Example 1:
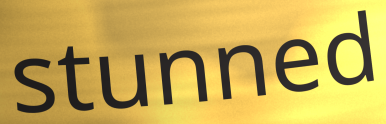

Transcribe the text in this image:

stunned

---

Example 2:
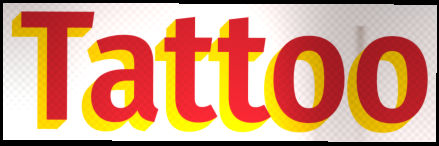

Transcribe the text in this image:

Tattoo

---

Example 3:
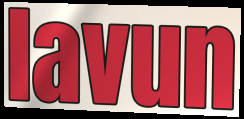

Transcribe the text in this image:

lavun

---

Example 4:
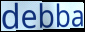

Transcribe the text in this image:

debba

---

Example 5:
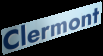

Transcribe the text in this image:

Clermont